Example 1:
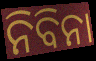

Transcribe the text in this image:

ନିବିନା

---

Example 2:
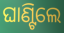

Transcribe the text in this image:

ଘାଣ୍ଟିଲେ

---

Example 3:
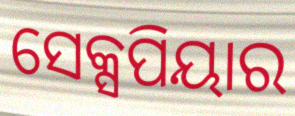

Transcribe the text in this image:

ସେକ୍ସପିୟାର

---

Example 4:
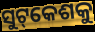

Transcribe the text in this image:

ସୁଟ୍‌କେଶକୁ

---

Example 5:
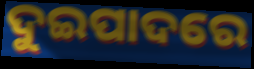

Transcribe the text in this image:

ଦୁଇପାଦରେ